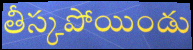
తీస్కపోయిండు